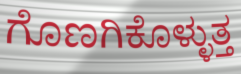
ಗೊಣಗಿಕೊಳ್ಳುತ್ತ